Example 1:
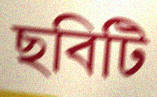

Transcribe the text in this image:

ছবিটি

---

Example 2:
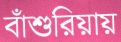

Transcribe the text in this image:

বাঁশুরিয়ায়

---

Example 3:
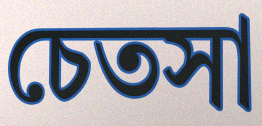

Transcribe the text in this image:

চেতসা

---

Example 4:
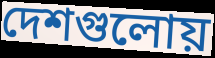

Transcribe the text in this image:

দেশগুলোয়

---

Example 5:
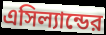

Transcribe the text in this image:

এসিল্যান্ডের